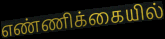
எண்ணிக்கையில்